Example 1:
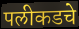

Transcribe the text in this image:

पलीकडचे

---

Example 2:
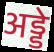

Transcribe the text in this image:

अड्डे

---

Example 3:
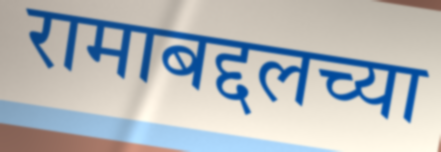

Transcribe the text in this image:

रामाबद्दलच्या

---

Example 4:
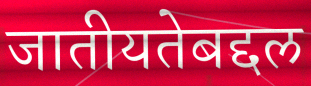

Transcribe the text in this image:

जातीयतेबद्दल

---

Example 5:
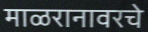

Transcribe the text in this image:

माळरानावरचे